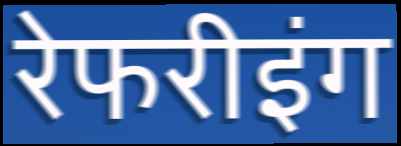
रेफरीइंग